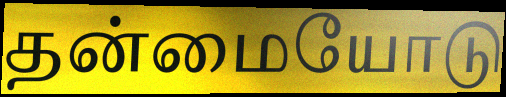
தன்மையோடு